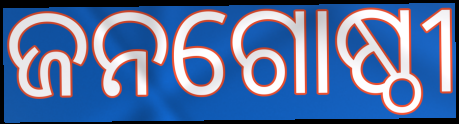
ଜନଗୋଷ୍ଠୀ